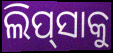
ଲିପ୍‍ସାକୁ